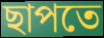
ছাপতে